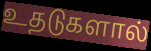
உதடுகளால்